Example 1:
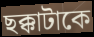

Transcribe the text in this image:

ছক্কাটাকে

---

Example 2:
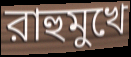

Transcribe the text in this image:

রাহুমুখে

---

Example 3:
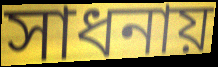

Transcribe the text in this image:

সাধনায়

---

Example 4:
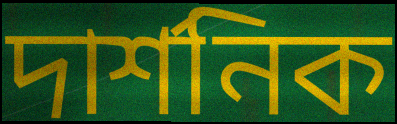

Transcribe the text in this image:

দার্শনিক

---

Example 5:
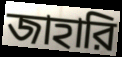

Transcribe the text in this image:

জাহারি